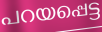
പറയപ്പെട്ട